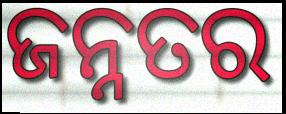
ଜନ୍ନତର